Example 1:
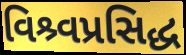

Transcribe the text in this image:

વિશ્ર્વપ્રસિદ્ધ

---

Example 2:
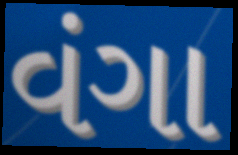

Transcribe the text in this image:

વંગા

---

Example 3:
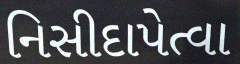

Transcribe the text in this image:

નિસીદાપેત્વા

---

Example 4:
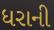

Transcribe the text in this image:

ધરાની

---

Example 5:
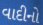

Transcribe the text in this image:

વાદીનો